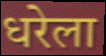
धरेला